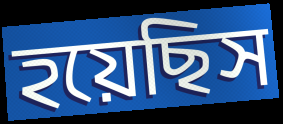
হয়েছিস